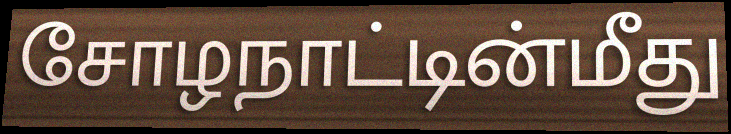
சோழநாட்டின்மீது